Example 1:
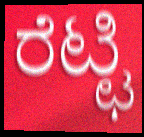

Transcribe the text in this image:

ರೆಟ್ಟಿ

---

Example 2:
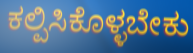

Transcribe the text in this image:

ಕಲ್ಪಿಸಿಕೊಳ್ಳಬೇಕು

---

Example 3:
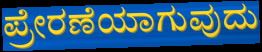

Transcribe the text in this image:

ಪ್ರೇರಣೆಯಾಗುವುದು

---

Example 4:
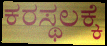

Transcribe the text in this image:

ಕರಸ್ಥಲಕ್ಕೆ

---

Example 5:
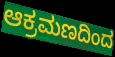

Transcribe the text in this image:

ಆಕ್ರಮಣದಿಂದ